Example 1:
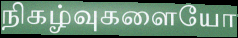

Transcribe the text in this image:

நிகழ்வுகளையோ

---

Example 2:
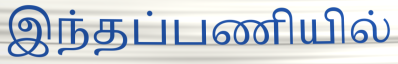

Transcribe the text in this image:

இந்தப்பணியில்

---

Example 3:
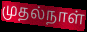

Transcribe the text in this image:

முதல்நாள்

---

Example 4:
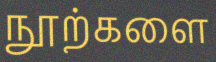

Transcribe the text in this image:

நூற்களை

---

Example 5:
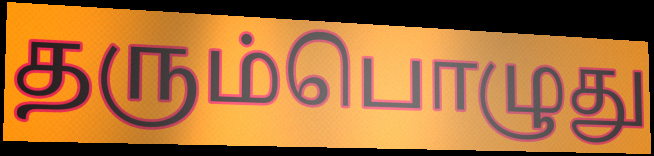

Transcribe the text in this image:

தரும்பொழுது